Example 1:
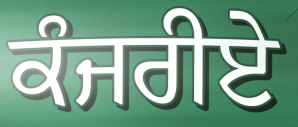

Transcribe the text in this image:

ਕੰਜਰੀਏ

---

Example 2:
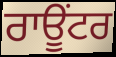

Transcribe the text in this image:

ਰਾਊਂਟਰ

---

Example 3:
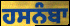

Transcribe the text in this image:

ਹਸਨੰਬਾ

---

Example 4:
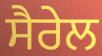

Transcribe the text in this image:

ਸੈਰੇਲ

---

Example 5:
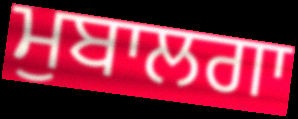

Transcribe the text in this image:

ਮੁਬਾਲਗਾ